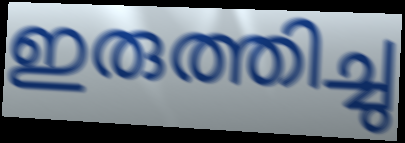
ഇരുത്തിച്ചു